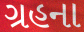
ગ્રહના